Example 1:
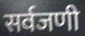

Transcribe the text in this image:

सर्वजणी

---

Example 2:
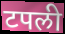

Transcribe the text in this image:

टपली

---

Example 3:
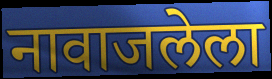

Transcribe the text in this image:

नावाजलेला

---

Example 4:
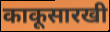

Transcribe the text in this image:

काकूसारखी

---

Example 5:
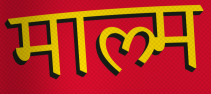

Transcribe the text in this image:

माल्म